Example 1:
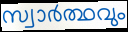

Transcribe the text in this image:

സ്വാർത്ഥവും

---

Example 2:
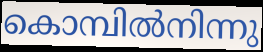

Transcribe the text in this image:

കൊമ്പിൽനിന്നു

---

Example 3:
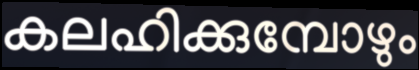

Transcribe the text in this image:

കലഹിക്കുമ്പോഴും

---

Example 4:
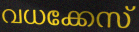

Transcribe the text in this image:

വധക്കേസ്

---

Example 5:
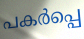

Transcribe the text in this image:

പകർപ്പെ